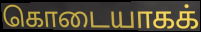
கொடையாகக்